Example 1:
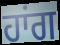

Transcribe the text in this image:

ਹਾਂਗ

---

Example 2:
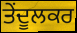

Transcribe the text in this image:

ਤੇਂਦੂਲਕਰ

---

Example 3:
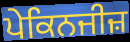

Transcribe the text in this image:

ਪੇਕਿਨਜੀਜ਼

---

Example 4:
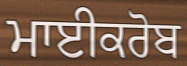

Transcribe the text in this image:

ਮਾਈਕਰੋਬ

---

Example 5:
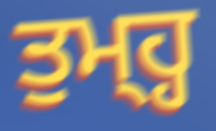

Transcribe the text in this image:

ਤੁਮ੍ਹ੍ਹ